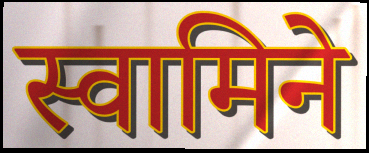
स्वामिने